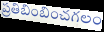
ప్రతిబింబించగలం